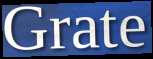
Grate